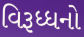
વિરૂધ્ધનો